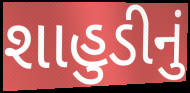
શાહુડીનું